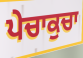
ਪੇਚਾਕੁਚਾ